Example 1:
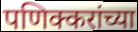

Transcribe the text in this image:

पणिक्करांच्या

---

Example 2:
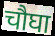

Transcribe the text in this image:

चौघा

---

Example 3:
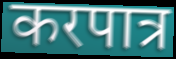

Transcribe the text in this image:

करपात्र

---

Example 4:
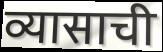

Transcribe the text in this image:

व्यासाची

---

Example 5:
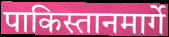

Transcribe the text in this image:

पाकिस्तानमार्गे